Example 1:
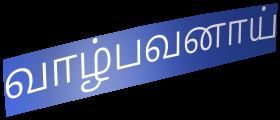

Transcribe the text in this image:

வாழ்பவனாய்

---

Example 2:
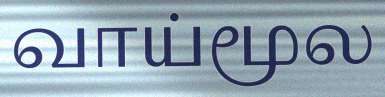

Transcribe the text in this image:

வாய்மூல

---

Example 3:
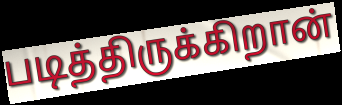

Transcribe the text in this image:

படித்திருக்கிறான்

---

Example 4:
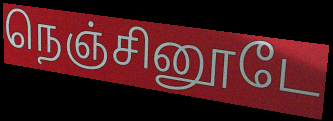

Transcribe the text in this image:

நெஞ்சினூடே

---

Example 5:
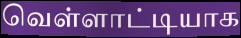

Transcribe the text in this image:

வெள்ளாட்டியாக